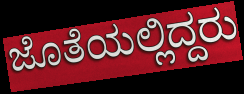
ಜೊತೆಯಲ್ಲಿದ್ದರು